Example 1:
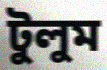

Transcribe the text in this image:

টুলুম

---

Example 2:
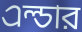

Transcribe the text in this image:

এল্ডার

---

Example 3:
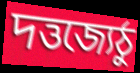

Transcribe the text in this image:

দত্তজ্যেঠু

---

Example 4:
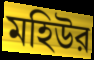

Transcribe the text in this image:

মহিউর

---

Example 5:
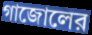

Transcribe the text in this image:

গাজোলের